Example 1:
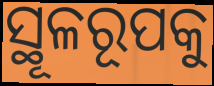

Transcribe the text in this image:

ସ୍ଥୂଳରୂପକୁ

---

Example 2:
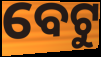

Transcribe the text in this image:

ବେଟୁ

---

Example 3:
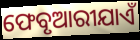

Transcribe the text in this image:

ଫେବୃଆରୀଯାଏଁ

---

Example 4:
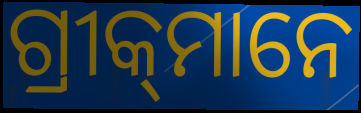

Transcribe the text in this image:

ଗ୍ରୀକ୍‍ମାନେ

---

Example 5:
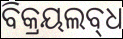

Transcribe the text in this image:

ବିକ୍ରୟଲବ୍‌ଧ